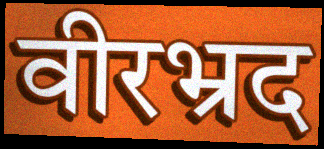
वीरभ्रद